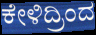
ಕೇಳಿದ್ರಿಂದ